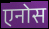
एनोस